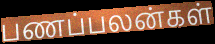
பணப்பலன்கள்